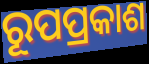
ରୂପପ୍ରକାଶ